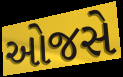
ઓજસે